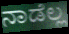
ನಾಡೆಲ್ಲ